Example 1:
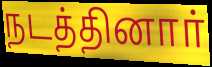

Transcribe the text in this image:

நடத்தினார்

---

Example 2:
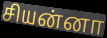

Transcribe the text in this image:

சியன்னா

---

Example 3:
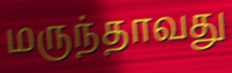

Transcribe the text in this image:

மருந்தாவது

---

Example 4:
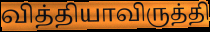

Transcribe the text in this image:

வித்தியாவிருத்தி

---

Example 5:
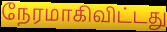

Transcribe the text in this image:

நேரமாகிவிட்டது